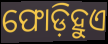
ଫୋଡ଼ିହୁଏ